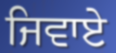
ਜਿਵਾਏ